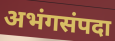
अभंगसंपदा